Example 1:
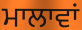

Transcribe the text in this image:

ਮਾਲਾਵਾਂ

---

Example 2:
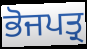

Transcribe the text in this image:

ਭੋਜਪਤ੍ਰ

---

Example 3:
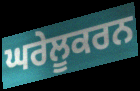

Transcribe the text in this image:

ਘਰੇਲੂਕਰਨ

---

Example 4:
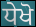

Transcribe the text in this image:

ਧੇਖੋ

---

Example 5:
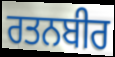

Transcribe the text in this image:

ਰਤਨਬੀਰ